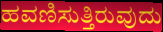
ಹವಣಿಸುತ್ತಿರುವುದು